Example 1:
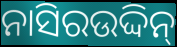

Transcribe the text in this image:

ନାସିରଉଦ୍ଦିନ୍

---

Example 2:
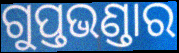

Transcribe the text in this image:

ଗୁପ୍ତଭଣ୍ଡାର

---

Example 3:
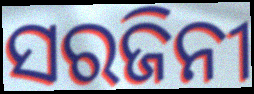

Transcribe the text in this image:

ସରଜିନୀ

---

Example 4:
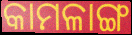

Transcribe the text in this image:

କାମଳାଙ୍ଗ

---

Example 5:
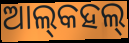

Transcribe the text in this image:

ଆଲ୍‌କହଲ୍